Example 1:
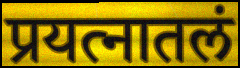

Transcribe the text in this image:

प्रयत्नातलं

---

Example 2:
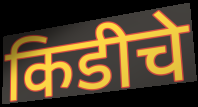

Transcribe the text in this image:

किडीचे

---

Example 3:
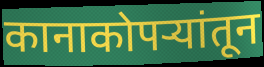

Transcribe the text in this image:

कानाकोपर्‍यांतून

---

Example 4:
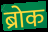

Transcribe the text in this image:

ब्रोक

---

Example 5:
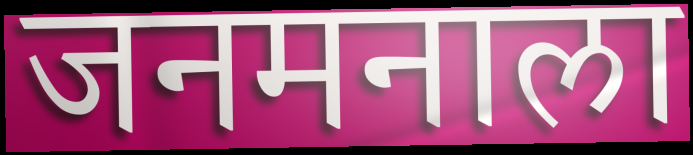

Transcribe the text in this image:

जनमनाला